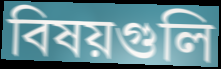
বিষয়গুলি